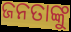
ଜନତାଙ୍କୁ